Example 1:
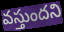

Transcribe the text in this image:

వస్తుందని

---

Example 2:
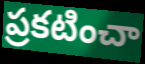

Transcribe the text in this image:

ప్రకటించా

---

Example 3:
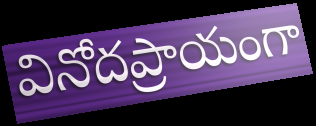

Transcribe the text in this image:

వినోదప్రాయంగా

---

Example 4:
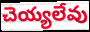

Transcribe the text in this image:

చెయ్యలేవు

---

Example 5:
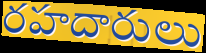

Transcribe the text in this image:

రహదారులు